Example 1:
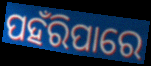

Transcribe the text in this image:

ପହଁରିପାରେ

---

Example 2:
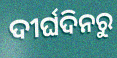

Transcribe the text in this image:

ଦୀର୍ଘଦିନରୁ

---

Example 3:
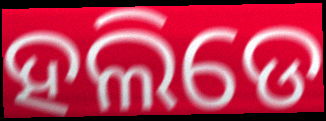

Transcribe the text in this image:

ହଲିଡେ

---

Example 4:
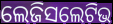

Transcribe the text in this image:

ଲେଜିସଲେଟିଭ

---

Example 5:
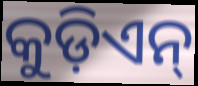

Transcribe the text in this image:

କୁଡ଼ିଏନ୍